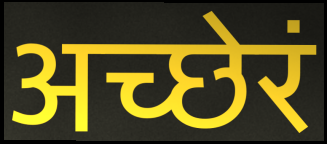
अच्छेरं